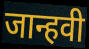
जान्हवी